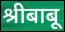
श्रीबाबू